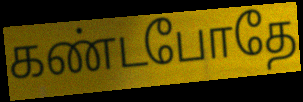
கண்டபோதே